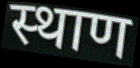
स्थाण